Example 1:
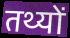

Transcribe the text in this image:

तथ्यों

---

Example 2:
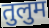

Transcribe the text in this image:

तुलुम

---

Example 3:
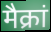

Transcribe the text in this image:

मैक्रां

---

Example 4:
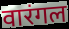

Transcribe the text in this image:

वारंगल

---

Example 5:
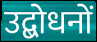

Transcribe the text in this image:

उद्बोधनों